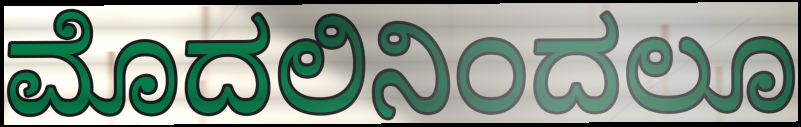
ಮೊದಲಿನಿಂದಲೂ